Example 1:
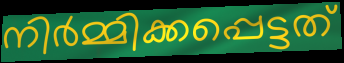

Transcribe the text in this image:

നിർമ്മിക്കപ്പെട്ടത്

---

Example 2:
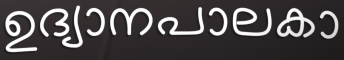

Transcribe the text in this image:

ഉദ്യാനപാലകാ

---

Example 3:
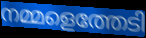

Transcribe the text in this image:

നമ്മളെത്തേടി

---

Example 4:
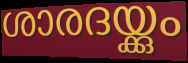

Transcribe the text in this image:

ശാരദയ്ക്കും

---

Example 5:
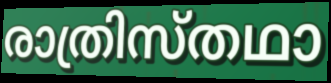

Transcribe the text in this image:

രാത്രിസ്തഥാ